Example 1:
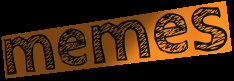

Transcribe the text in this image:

memes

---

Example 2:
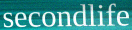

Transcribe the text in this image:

secondlife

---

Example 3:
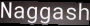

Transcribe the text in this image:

Naggash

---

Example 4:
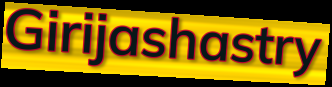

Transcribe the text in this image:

Girijashastry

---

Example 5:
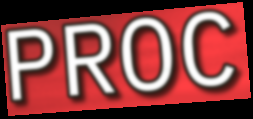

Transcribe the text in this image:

PROC